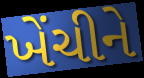
ખેંચીને